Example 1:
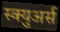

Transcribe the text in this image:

स्क्युअर्स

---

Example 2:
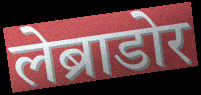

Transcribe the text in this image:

लेब्राडोर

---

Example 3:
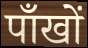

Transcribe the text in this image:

पाँखों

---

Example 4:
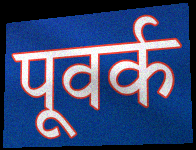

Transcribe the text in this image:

पूवर्क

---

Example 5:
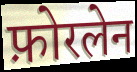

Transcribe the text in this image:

फ़ोरलेन